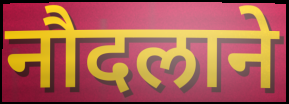
नौदलाने